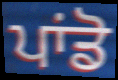
ਪਾਂਡੋ